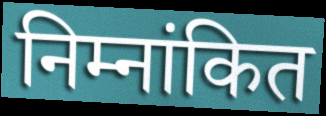
निम्नांकित